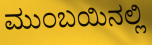
ಮುಂಬಯಿನಲ್ಲಿ